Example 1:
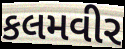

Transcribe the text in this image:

કલમવીર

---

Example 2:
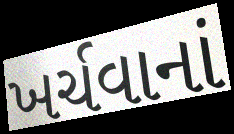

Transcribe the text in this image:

ખર્ચવાનાં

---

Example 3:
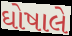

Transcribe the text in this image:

ઘોષાલે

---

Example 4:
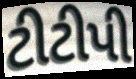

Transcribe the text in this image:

ટીટીપી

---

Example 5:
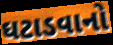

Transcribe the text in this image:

ઘટાડવાનો